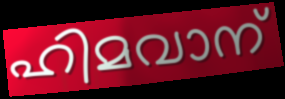
ഹിമവാന്